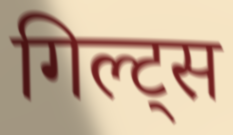
गिल्ट्स